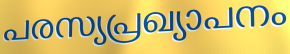
പരസ്യപ്രഖ്യാപനം